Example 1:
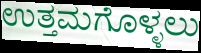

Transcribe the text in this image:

ಉತ್ತಮಗೊಳ್ಳಲು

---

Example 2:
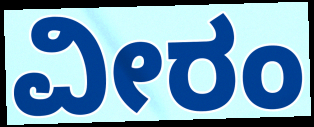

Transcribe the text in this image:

ವೀರಂ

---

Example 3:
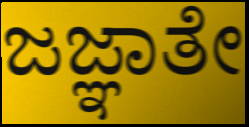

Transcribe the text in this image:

ಜಜ್ಞಾತೇ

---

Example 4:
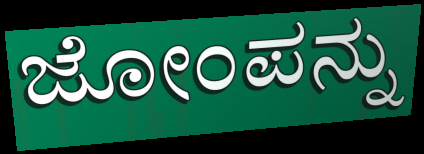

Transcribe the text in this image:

ಜೋಂಪನ್ನು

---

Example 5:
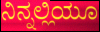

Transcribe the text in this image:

ನಿನ್ನಲ್ಲಿಯೂ